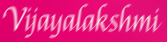
Vijayalakshmi